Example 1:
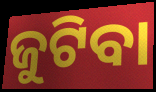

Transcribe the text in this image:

ଜୁଟିବା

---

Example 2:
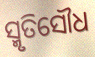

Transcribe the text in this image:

ସ୍ମୃତିସୌଧ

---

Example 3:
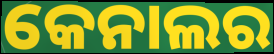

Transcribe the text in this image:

କେନାଲର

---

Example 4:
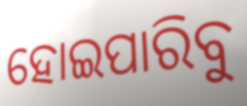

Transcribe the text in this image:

ହୋଇପାରିବୁ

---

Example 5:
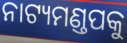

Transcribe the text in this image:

ନାଟ୍ୟମଣ୍ଡପକୁ